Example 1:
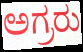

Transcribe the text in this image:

ಅಗ್ರರು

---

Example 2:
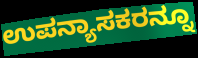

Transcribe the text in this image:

ಉಪನ್ಯಾಸಕರನ್ನೂ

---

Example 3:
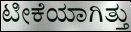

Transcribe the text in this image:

ಟೀಕೆಯಾಗಿತ್ತು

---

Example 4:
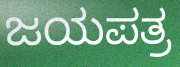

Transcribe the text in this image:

ಜಯಪತ್ರ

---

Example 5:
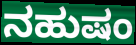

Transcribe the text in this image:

ನಹುಷಂ